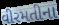
વીરમતીના